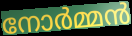
നോർമ്മൻ